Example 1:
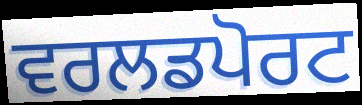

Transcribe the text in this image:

ਵਰਲਡਪੋਰਟ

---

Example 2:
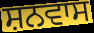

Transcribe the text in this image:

ਸ਼ਨਵਾਸ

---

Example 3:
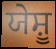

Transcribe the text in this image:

ਯੇਸ਼ੂ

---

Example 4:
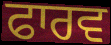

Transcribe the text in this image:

ਫਾਰਵ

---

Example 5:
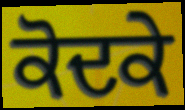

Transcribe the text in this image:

ਕੋਦਕੇ